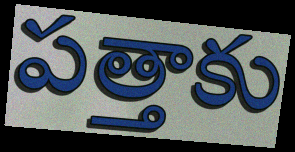
పత్తాకు